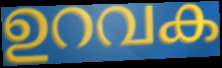
ഉറവക